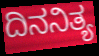
ದಿನನಿತ್ಯ